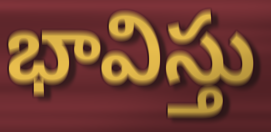
భావిస్తు